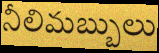
నీలిమబ్బులు